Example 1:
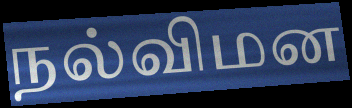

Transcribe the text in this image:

நல்விமன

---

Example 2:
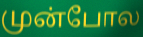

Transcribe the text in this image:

முன்போல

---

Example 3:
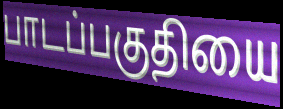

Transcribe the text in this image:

பாடப்பகுதியை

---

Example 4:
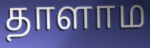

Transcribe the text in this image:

தாளாம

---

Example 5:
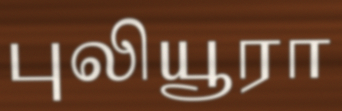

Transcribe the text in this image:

புலியூரா